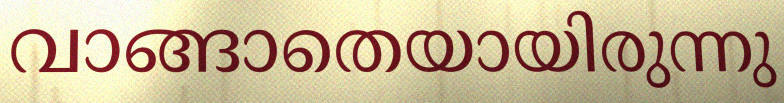
വാങ്ങാതെയായിരുന്നു